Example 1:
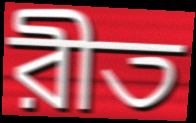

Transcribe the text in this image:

রীত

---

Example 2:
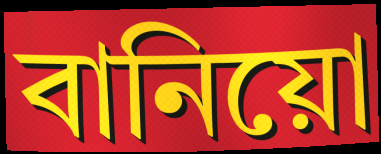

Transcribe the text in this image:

বানিয়ো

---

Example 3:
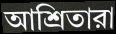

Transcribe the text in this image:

আশ্রিতারা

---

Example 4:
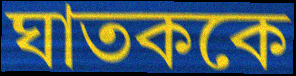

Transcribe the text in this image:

ঘাতককে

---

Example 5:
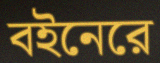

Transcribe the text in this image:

বইনেরে